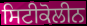
ਸਿਟੀਕੋਲੀਨ